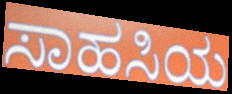
ಸಾಹಸಿಯ